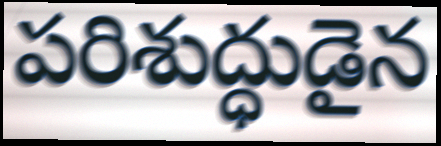
పరిశుద్ధుడైన